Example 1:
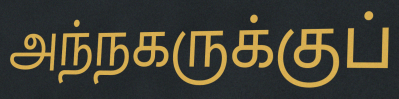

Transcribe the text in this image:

அந்நகருக்குப்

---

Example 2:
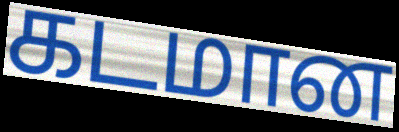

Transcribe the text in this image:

கடமான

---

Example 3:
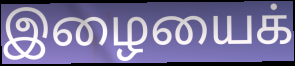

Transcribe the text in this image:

இழையைக்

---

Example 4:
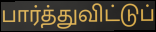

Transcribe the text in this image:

பார்த்துவிட்டுப்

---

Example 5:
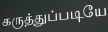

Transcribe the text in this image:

கருத்துப்படியே